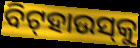
ବିଟ୍‌ହାଉସ୍‌କୁ